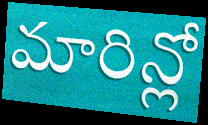
మారిన్లో